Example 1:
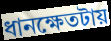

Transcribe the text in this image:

ধানক্ষেতটায়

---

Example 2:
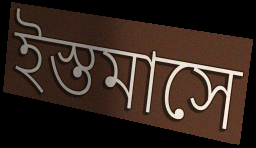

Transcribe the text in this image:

ইস্তমাসে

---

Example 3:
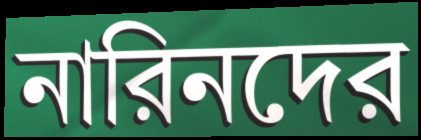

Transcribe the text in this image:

নারিনদের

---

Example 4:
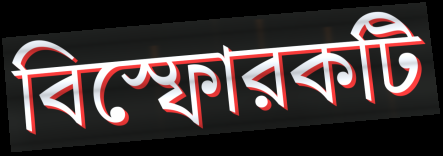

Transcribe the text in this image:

বিস্ফোরকটি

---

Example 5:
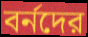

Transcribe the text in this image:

বর্নদের